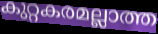
കുറ്റകരമല്ലാത്ത